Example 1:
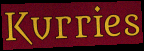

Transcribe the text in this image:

Kurries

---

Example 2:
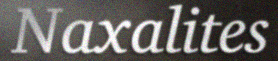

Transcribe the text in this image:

Naxalites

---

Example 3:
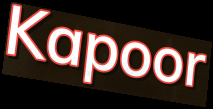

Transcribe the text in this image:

Kapoor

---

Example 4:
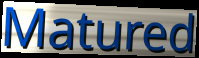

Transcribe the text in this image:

Matured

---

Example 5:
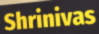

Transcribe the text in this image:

Shrinivas